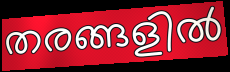
തരങ്ങളിൽ